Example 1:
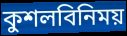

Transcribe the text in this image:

কুশলবিনিময়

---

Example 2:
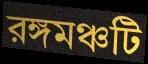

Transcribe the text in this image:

রঙ্গমঞ্চটি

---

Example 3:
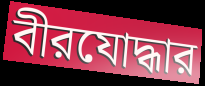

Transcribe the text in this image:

বীরযোদ্ধার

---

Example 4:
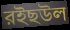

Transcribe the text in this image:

রইছউল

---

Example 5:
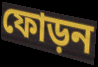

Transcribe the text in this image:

ফোড়ন